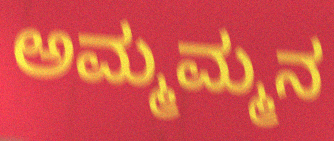
ಅಮ್ಮಮ್ಮನ